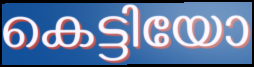
കെട്ടിയോ